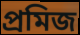
প্রমিজ